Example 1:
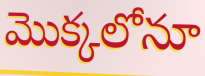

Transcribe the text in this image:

మొక్కలోనూ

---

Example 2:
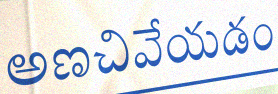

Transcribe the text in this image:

అణచివేయడం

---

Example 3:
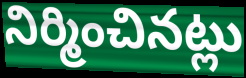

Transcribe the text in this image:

నిర్మించినట్లు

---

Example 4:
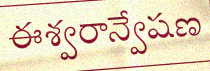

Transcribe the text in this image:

ఈశ్వరాన్వేషణ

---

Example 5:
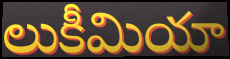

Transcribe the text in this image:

లుకీమియా